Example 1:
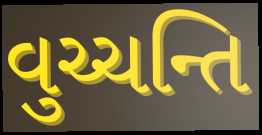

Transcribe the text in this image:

વુચ્ચન્તિ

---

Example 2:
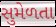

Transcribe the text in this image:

સુમેળતા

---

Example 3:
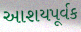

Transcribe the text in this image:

આશયપૂર્વક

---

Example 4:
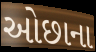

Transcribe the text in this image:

ઓછાના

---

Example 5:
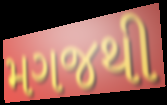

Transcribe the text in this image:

મગજથી